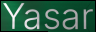
Yasar